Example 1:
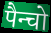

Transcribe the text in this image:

पैन्चो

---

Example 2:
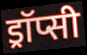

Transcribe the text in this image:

ड्रॉप्सी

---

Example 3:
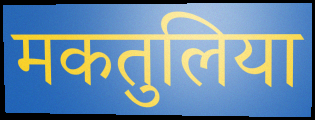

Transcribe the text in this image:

मकतुलिया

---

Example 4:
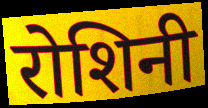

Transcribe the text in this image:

रोशिनी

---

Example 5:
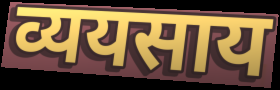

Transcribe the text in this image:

व्ययसाय